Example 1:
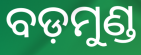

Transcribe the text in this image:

ବଡ଼ମୁଣ୍ଡ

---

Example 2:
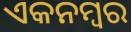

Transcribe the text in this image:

ଏକନମ୍ବର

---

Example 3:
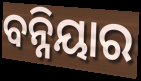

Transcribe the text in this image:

ବନ୍ନିୟାର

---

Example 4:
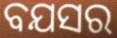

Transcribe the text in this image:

ବଯସର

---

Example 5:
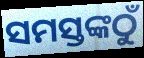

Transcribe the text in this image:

ସମସ୍ତଙ୍କଠୁଁ